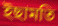
ইছামতি